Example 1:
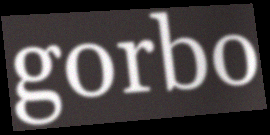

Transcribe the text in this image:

gorbo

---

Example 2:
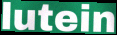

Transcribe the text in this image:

lutein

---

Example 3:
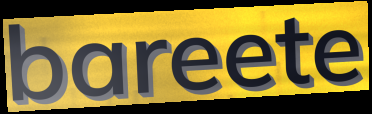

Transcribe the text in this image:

bareete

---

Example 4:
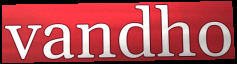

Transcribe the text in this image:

vandho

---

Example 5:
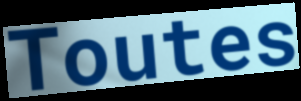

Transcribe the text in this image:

Toutes